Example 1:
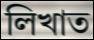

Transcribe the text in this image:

লিখাত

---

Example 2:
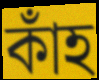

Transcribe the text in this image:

কাঁহ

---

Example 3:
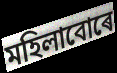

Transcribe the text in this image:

মহিলাবোৰে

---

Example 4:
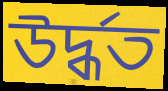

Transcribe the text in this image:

উৰ্দ্ধত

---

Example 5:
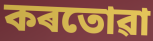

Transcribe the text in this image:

কৰতোৱা